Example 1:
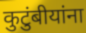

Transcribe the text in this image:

कुटुंबीयांना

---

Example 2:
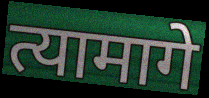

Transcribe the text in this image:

त्यामागे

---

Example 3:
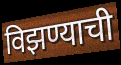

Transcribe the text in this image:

विझण्याची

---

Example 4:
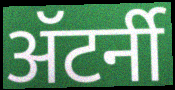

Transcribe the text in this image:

ॲटर्नी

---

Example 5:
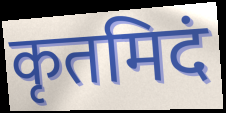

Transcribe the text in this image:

कृतमिदं